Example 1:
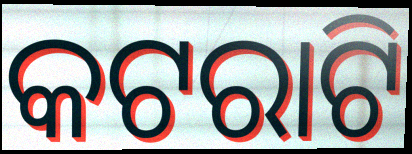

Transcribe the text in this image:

କଟରାଟି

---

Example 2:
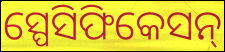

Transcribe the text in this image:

ସ୍ପେସିଫିକେସନ୍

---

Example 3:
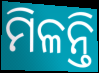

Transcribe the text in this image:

ମିଳନ୍ତି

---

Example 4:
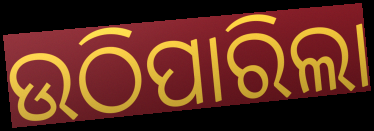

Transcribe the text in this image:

ଉଠିପାରିଲା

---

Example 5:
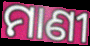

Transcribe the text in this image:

ମାଣୀ